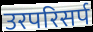
उरपरिसर्प